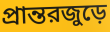
প্রান্তরজুড়ে